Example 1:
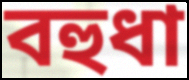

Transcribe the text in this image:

বহুধা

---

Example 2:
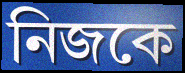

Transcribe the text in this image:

নিজকে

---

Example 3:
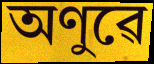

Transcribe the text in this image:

অণুৱে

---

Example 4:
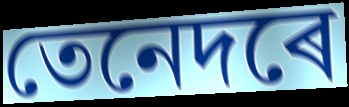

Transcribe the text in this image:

তেনেদৰে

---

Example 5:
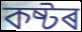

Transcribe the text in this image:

কষ্টৰ